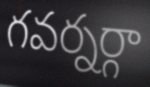
గవర్నర్గా